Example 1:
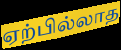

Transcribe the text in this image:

ஏற்பில்லாத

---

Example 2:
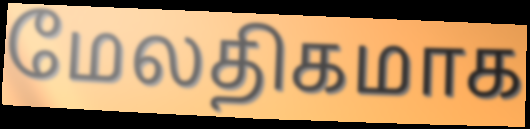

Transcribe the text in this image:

மேலதிகமாக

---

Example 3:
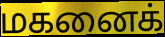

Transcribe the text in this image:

மகனைக்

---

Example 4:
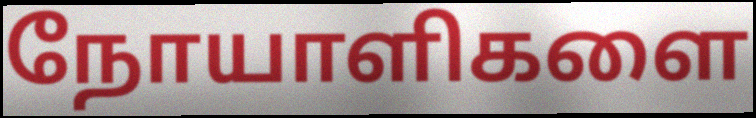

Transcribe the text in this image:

நோயாளிகளை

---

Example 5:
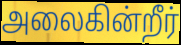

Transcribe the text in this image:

அலைகின்றீர்